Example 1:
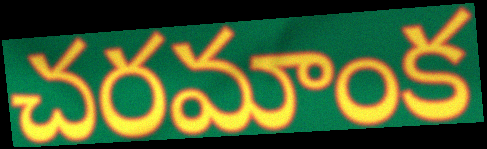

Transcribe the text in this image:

చరమాంక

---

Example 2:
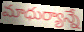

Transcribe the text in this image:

మాధుర్యాన్నే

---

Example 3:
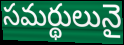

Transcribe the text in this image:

సమర్థులునై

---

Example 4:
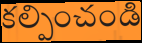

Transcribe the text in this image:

కల్పించండి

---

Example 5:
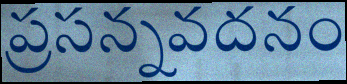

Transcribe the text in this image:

ప్రసన్నవదనం